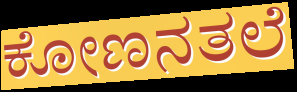
ಕೋಣನತಲೆ